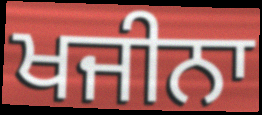
ਖਜੀਨਾ